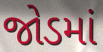
જોડમાં